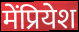
मेंप्रियेश